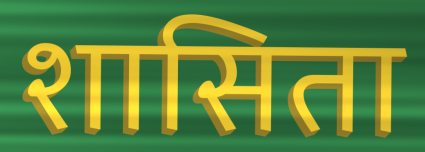
शासिता